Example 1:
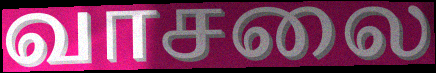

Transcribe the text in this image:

வாசலை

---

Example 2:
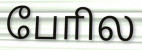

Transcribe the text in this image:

பேரில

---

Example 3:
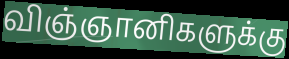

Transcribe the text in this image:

விஞ்ஞானிகளுக்கு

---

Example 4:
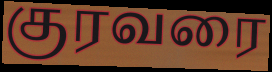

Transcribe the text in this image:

குரவரை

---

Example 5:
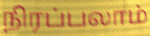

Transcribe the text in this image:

நிரப்பலாம்